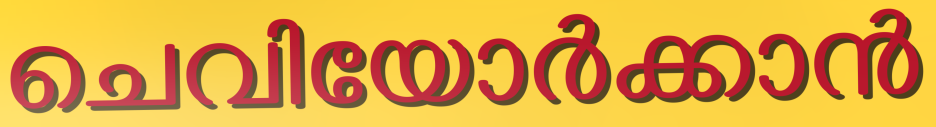
ചെവിയോർക്കാൻ